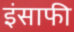
इंसाफी